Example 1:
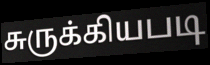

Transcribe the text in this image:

சுருக்கியபடி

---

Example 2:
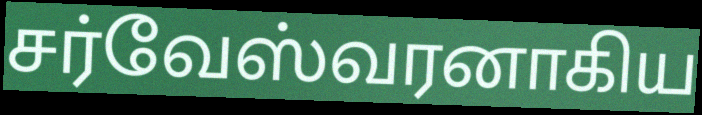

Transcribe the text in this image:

சர்வேஸ்வரனாகிய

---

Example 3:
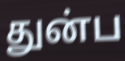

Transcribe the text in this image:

துன்ப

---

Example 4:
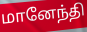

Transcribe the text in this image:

மானேந்தி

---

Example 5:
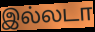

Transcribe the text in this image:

இல்லடா